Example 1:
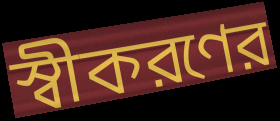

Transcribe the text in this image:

স্বীকরণের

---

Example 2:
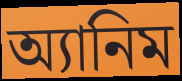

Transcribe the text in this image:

অ্যানিম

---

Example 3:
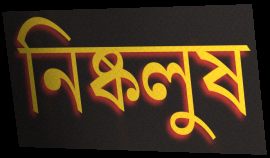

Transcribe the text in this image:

নিষ্কলুষ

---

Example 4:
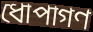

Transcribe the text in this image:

ধোপাগণ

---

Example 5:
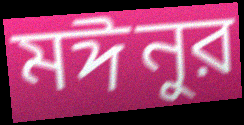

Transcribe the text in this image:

মঈনুর